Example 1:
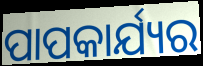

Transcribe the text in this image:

ପାପକାର୍ଯ୍ୟର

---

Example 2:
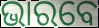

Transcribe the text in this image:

ଭାରବେ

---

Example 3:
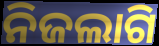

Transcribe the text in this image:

ନିଜଲାଗି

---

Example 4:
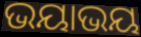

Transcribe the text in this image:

ଭୟାଭୟ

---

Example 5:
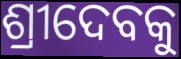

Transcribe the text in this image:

ଶ୍ରୀଦେବକୁ